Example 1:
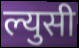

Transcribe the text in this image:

ल्युसी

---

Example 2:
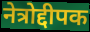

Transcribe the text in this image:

नेत्रोद्दीपक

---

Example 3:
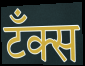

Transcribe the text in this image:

टँक्स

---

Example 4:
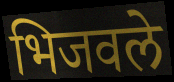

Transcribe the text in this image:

भिजवले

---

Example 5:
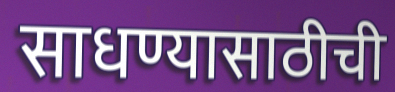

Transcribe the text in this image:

साधण्यासाठीची